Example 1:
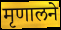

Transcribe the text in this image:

मृणालने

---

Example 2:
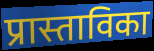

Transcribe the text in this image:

प्रास्ताविका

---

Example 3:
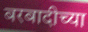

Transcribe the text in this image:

बरबादीच्या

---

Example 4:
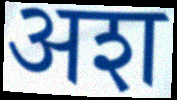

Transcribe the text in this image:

अश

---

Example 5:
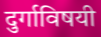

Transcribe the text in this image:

दुर्गाविषयी